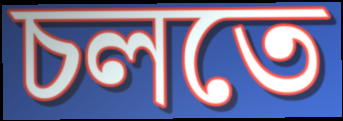
চলতে